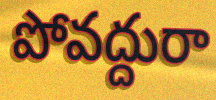
పోవద్దురా